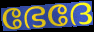
ഭേദേ